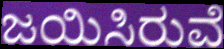
ಜಯಿಸಿರುವೆ